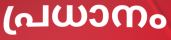
പ്രധാനം